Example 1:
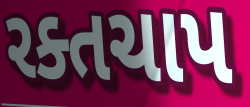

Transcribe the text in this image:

રક્તચાપ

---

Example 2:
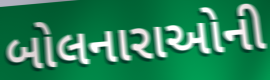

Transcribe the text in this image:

બોલનારાઓની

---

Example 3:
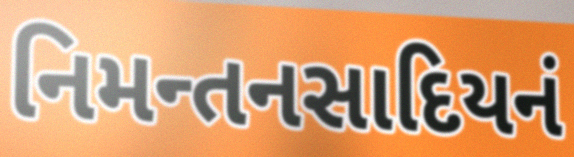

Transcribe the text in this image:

નિમન્તનસાદિયનં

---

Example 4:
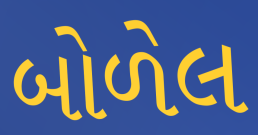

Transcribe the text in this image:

બોળેલ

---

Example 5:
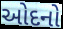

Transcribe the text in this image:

ઓદનો